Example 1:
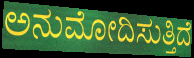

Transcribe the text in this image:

ಅನುಮೋದಿಸುತ್ತಿದೆ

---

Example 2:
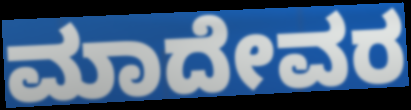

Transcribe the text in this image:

ಮಾದೇವರ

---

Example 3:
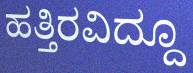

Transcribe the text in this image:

ಹತ್ತಿರವಿದ್ದೂ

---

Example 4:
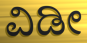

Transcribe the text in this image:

ವಿಡೀ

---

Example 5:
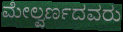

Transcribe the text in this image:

ಮೇಲ್ವರ್ಣದವರು